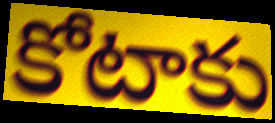
కోటాకు